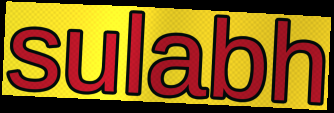
sulabh